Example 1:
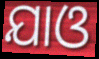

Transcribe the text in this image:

ଯାଓ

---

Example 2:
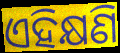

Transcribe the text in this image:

ଏହିକ୍ଷଣି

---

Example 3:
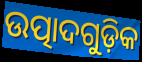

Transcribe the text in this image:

ଉତ୍ପାଦଗୁଡ଼ିକ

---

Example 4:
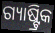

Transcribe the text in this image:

ଗ୍ୟାଷ୍ଟ୍ରିକ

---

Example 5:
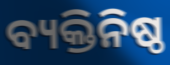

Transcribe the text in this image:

ବ୍ୟକ୍ତିନିଷ୍ଠ